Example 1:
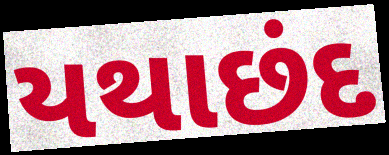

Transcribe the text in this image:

યથાછંદ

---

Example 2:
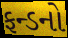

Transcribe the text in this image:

ફન્ડનો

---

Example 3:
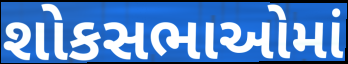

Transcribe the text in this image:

શોકસભાઓમાં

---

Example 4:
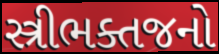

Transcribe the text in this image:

સ્ત્રીભક્તજનો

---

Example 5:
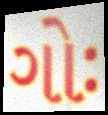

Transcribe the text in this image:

ગોઃ